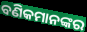
ବଣିକମାନଙ୍କର